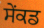
ਸੇਂਕਡ